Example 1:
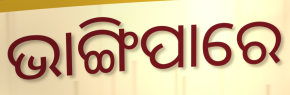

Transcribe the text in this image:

ଭାଙ୍ଗିପାରେ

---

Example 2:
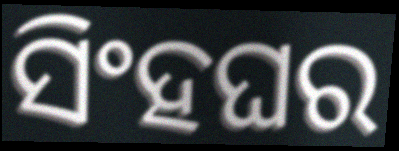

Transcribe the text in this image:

ସିଂହଘର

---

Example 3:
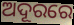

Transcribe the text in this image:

ଅଦୂରରେ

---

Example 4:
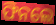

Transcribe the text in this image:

ଫିନଲେ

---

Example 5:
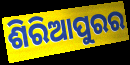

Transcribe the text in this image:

ଶିରିଆପୁରର